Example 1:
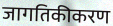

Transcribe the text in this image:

जागतिकीकरण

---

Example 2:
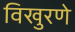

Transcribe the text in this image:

विखुरणे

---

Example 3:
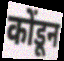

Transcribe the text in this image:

कोंडून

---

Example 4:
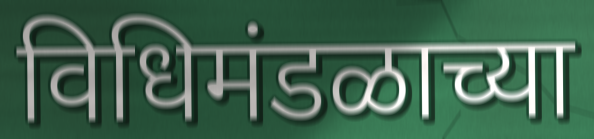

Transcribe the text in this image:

विधिमंडळाच्या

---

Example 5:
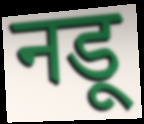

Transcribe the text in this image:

नडू